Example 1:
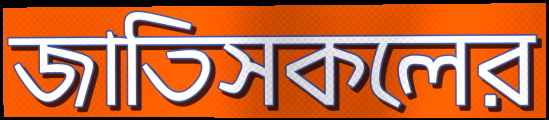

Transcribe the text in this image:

জাতিসকলের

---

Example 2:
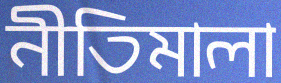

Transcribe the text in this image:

নীতিমালা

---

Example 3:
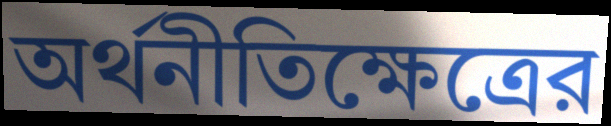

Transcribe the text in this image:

অর্থনীতিক্ষেত্রের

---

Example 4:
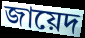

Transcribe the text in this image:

জায়েদ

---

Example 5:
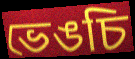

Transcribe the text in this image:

ভেঙচি